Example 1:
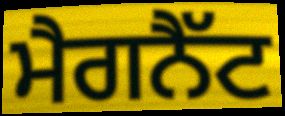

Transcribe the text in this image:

ਮੈਗਨੈੱਟ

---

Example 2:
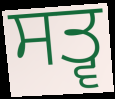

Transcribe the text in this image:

ਸਤ੍ਵ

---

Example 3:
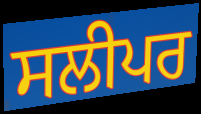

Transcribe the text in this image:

ਸਲੀਪਰ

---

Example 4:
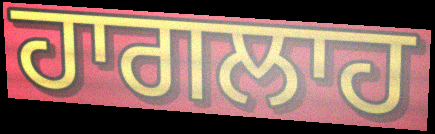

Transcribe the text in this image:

ਹਾਗਲਾਹ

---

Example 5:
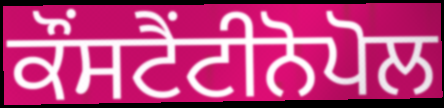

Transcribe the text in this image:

ਕੌਂਸਟੈਂਟੀਨੋਪੋਲ